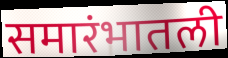
समारंभातली